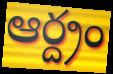
ఆర్ద్రం